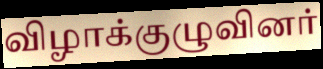
விழாக்குழுவினர்